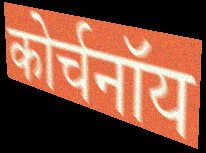
कोर्चनॉय